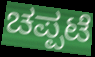
ಚಪ್ಪಟೆ